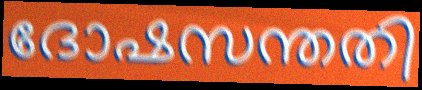
ദോഷസന്തതി